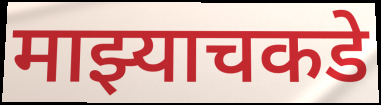
माझ्याचकडे